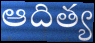
ఆదిత్య